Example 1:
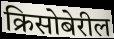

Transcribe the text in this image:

क्रिसोबेरील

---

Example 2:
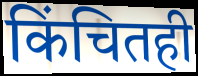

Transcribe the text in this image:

किंचितही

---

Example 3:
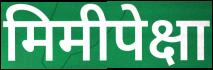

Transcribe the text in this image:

मिमीपेक्षा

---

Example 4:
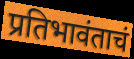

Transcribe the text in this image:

प्रतिभावंताचं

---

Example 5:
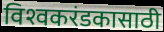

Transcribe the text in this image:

विश्वकरंडकासाठी